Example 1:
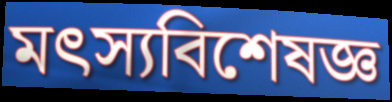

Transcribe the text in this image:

মৎস্যবিশেষজ্ঞ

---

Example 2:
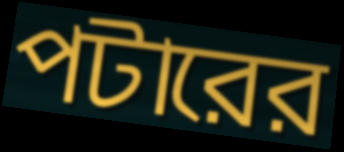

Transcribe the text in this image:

পটারের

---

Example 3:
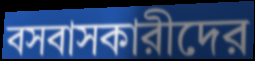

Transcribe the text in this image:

বসবাসকারীদের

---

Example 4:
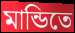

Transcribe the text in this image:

মান্ডিতে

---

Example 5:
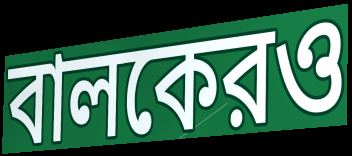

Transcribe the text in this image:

বালকেরও